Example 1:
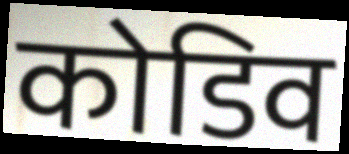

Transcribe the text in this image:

कोडिव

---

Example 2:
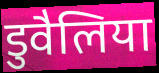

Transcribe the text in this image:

डुवैलिया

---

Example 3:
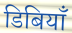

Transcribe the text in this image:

डिबियाँ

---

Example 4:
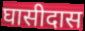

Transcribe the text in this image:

घासीदास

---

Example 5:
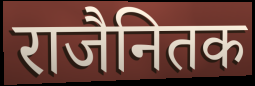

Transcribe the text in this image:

राजैनितक